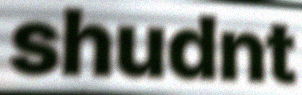
shudnt